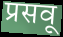
प्रसवू